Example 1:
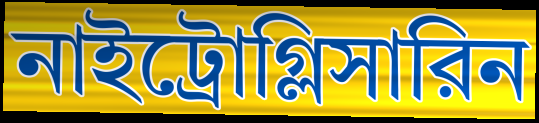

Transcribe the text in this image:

নাইট্রোগ্লিসারিন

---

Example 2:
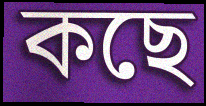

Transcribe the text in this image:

কছে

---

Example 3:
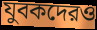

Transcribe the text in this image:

যুবকদেরও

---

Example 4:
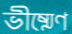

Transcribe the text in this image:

ভীষ্মেণ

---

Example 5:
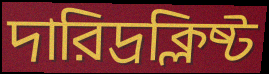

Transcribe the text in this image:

দারিদ্রক্লিষ্ট